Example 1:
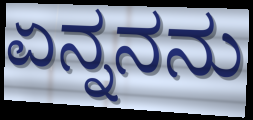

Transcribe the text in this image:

ಏನ್ನನನು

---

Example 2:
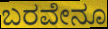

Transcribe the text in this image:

ಬರವೇನೂ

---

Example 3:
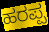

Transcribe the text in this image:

ಹರಪ್ಪ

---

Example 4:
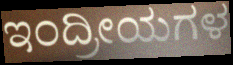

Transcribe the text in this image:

ಇಂದ್ರೀಯಗಳ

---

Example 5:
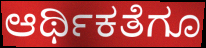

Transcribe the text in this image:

ಆರ್ಥಿಕತೆಗೂ